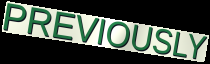
PREVIOUSLY